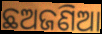
ଛଅଜଣିଆ